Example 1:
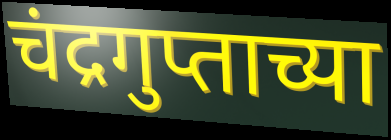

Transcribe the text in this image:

चंद्रगुप्ताच्या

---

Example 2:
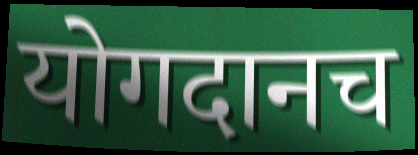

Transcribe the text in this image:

योगदानच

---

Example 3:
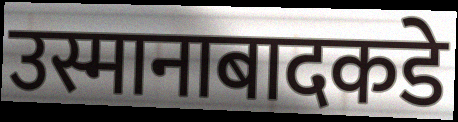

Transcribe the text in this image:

उस्मानाबादकडे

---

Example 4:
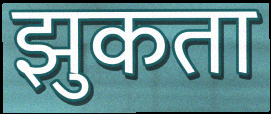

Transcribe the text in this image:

झुकता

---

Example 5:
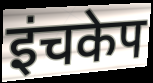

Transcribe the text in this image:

इंचकेप